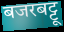
बजरबट्टू